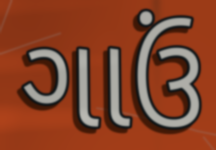
ગાઉં